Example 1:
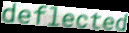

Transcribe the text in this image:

deflected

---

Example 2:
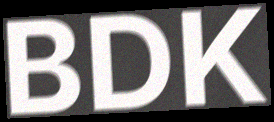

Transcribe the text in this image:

BDK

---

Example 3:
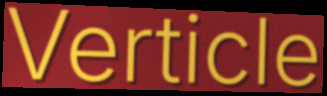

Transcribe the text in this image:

Verticle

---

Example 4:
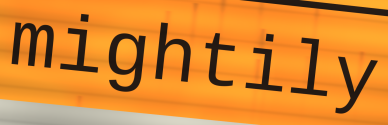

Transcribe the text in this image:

mightily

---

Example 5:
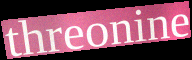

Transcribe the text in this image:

threonine